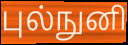
புல்நுனி